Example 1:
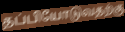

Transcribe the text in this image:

தப்பியோடுவதற்கு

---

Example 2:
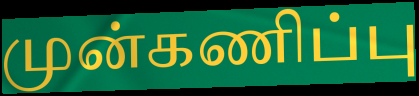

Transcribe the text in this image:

முன்கணிப்பு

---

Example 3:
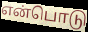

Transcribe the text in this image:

என்பொடு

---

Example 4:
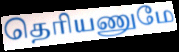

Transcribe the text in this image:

தெரியணுமே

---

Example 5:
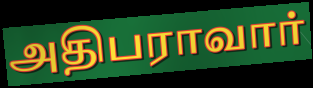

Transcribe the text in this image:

அதிபராவார்